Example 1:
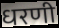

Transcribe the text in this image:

धरणी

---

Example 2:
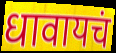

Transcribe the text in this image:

धावायचं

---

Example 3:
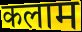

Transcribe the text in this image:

कलाम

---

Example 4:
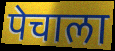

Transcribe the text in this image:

पेचाला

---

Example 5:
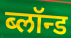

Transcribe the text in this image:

ब्लॉन्ड